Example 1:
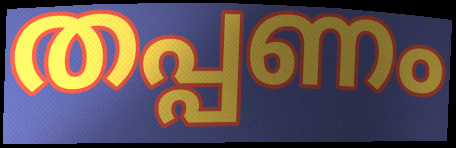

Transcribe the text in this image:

തപ്പണം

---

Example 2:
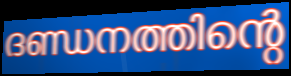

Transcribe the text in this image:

ദണ്ഡനത്തിന്റെ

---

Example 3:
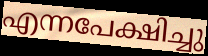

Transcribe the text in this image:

എന്നപേക്ഷിച്ചു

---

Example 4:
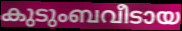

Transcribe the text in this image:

കുടുംബവീടായ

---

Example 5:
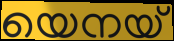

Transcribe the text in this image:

യെനയ്